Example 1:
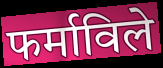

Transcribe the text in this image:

फर्माविले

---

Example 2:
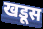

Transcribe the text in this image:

खडूस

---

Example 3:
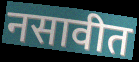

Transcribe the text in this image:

नसावीत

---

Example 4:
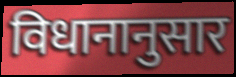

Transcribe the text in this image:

विधानानुसार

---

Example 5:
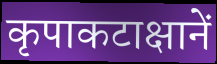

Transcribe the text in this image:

कृपाकटाक्षानें